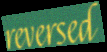
reversed